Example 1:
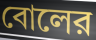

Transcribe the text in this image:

বোলের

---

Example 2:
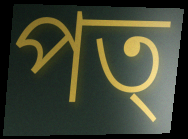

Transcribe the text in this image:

পত্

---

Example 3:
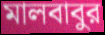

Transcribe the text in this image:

মালবাবুর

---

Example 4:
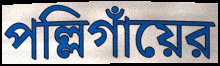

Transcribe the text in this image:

পল্লিগাঁয়ের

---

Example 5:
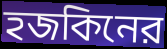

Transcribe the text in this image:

হজকিনের